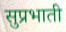
सुप्रभाती